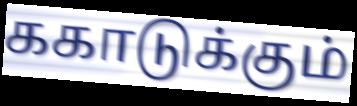
ககாடுக்கும்